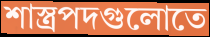
শাস্ত্রপদগুলোতে